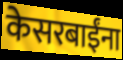
केसरबाईंना